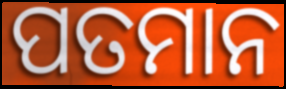
ପତମାନ